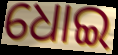
ଧୋଇ